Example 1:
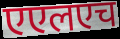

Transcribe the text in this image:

एएलएच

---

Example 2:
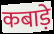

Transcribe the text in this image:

कबाड़े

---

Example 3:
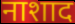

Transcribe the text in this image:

नाशाद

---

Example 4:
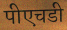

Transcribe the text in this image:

पीएचडी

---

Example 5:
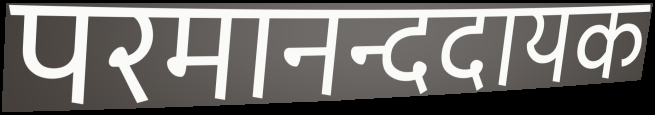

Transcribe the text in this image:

परमानन्ददायक